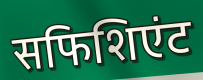
सफिशिएंट